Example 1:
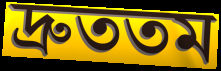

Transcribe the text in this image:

দ্রুততম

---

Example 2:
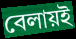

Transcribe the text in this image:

বেলায়ই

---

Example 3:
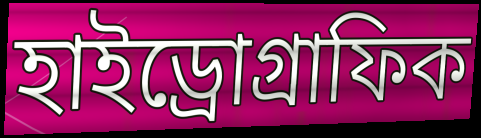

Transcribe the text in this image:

হাইড্রোগ্রাফিক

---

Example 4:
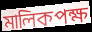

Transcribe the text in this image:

মালিকপক্ষ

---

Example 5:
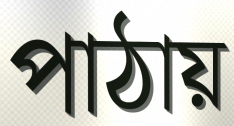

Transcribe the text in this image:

পাঠায়